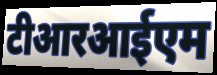
टीआरआईएम